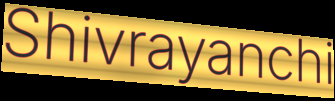
Shivrayanchi